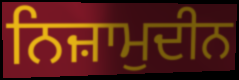
ਨਿਜ਼ਾਮੁਦੀਨ